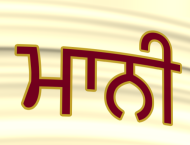
ਮਾਨੀ